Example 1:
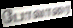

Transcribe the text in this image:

போவாரை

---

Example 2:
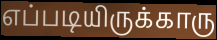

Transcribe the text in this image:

எப்படியிருக்காரு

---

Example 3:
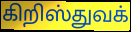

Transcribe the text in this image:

கிறிஸ்துவக்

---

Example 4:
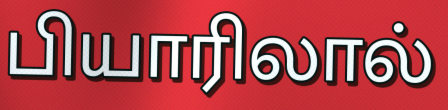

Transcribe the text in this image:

பியாரிலால்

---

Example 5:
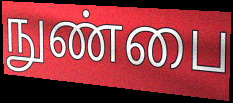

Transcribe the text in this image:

நுண்பை